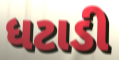
ધટાડી